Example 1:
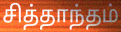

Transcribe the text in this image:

சித்தாந்தம்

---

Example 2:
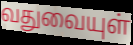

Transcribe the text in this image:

வதுவையுள்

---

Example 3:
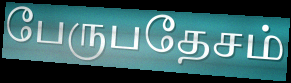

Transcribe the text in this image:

பேருபதேசம்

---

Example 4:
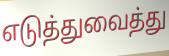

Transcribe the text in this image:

எடுத்துவைத்து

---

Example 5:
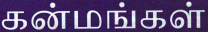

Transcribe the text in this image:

கன்மங்கள்